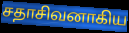
சதாசிவனாகிய